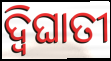
ଦ୍ବିଘାତୀ